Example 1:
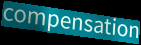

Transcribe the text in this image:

compensation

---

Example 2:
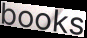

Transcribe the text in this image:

books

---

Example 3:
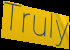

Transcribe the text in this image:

Truly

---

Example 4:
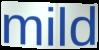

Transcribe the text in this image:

mild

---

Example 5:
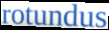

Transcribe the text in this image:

rotundus